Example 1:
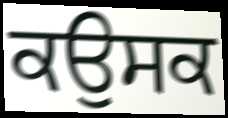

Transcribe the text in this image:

ਕਉਸਕ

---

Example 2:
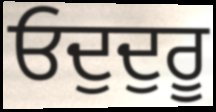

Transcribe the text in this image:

ਓਦੁਦੁਰੂ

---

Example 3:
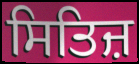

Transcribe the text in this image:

ਸਿਤਿਜ਼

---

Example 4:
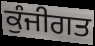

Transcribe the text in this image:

ਕੁੰਜੀਗਤ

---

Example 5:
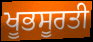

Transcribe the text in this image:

ਖੂਭਸੂਰਤੀ